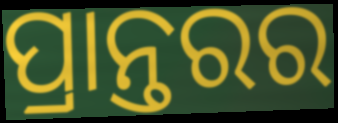
ପ୍ରାନ୍ତରର